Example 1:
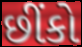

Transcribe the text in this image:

છીંકો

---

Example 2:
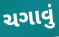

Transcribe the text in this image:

ચગાવું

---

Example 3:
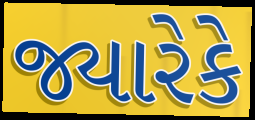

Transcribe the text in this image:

જ્યારેકે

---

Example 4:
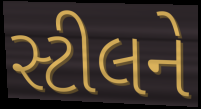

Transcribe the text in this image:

સ્ટીલને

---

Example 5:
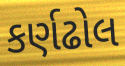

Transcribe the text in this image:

કર્ણઢોલ